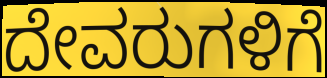
ದೇವರುಗಳಿಗೆ